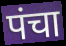
पंचा